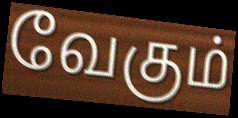
வேகும்